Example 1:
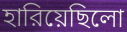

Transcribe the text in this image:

হারিয়েছিলো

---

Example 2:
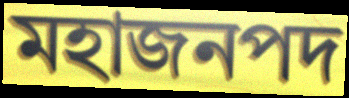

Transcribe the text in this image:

মহাজনপদ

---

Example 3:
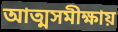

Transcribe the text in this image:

আত্মসমীক্ষায়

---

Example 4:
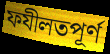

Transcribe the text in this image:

ফযীলতপূর্ণ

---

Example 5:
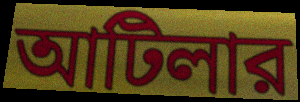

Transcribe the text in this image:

আটিলার